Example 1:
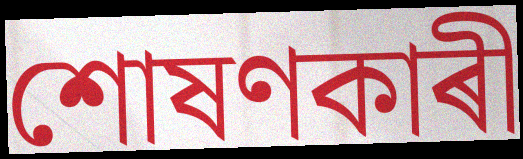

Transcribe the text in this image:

শোষণকাৰী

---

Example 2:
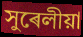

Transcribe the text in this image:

সুৰেলীয়া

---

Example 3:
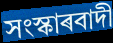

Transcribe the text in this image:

সংস্কাৰবাদী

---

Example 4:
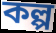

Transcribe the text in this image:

কল্প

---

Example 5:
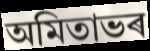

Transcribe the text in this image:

অমিতাভৰ